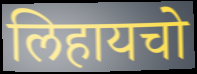
लिहायचो